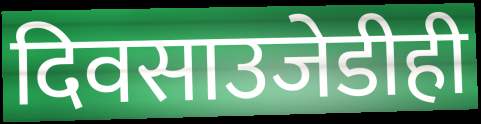
दिवसाउजेडीही